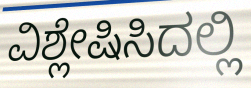
ವಿಶ್ಲೇಷಿಸಿದಲ್ಲಿ